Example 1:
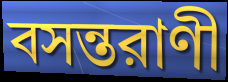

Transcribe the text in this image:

বসন্তরাণী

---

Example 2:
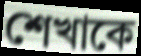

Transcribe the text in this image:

শেখাকে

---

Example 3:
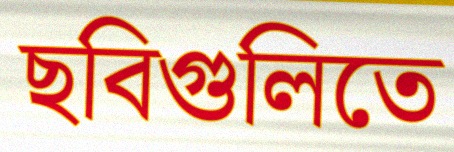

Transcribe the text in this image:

ছবিগুলিতে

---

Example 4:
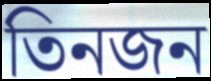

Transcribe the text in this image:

তিনজন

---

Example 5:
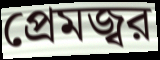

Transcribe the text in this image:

প্রেমজ্বর